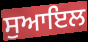
ਸੁਆਇਲ